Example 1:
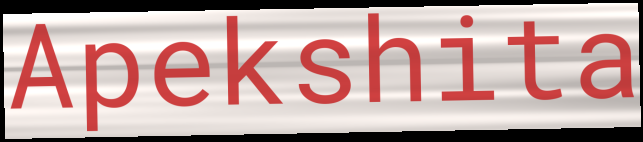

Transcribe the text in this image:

Apekshita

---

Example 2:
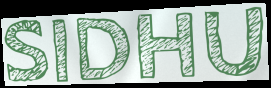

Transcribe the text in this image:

SIDHU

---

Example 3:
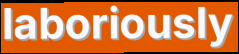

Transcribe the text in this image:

laboriously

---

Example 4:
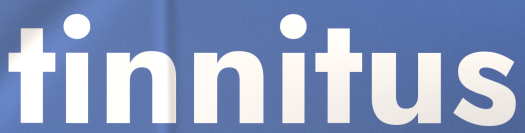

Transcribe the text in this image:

tinnitus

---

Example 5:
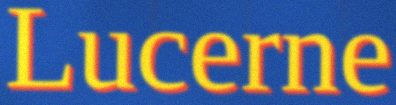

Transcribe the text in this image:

Lucerne